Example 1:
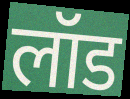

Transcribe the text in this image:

लॉड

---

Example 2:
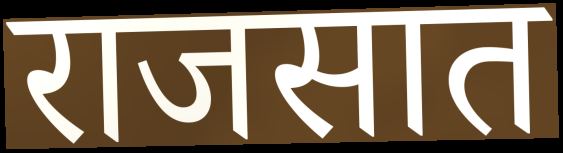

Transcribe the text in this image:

राजसात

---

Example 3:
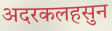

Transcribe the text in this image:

अदरकलहसुन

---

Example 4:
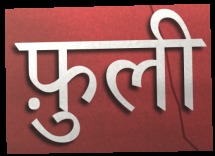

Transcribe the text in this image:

फ़ुली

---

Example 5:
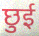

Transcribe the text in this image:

छुई